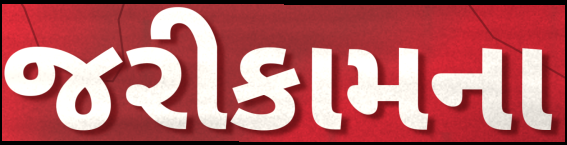
જરીકામના